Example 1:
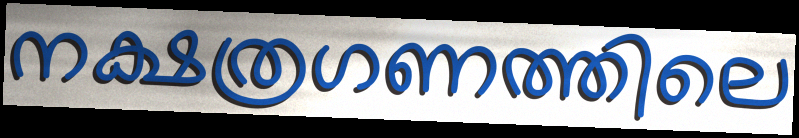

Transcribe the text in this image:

നക്ഷത്രഗണത്തിലെ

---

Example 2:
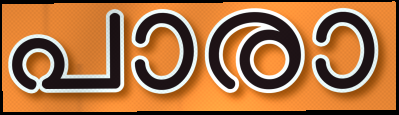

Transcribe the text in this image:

പാരാ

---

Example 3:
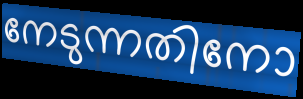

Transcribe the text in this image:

നേടുന്നതിനോ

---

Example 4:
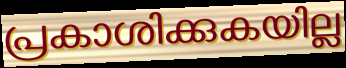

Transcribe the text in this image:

പ്രകാശിക്കുകയില്ല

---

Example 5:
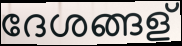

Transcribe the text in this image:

ദേശങ്ങള്